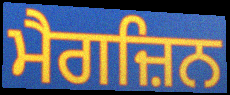
ਮੈਗਜ਼ਿਨ